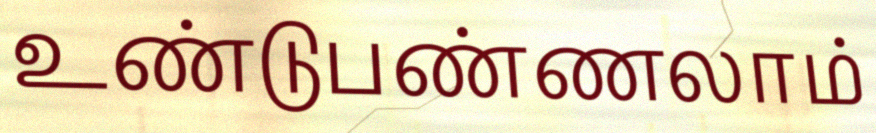
உண்டுபண்ணலாம்